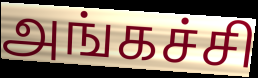
அங்கச்சி